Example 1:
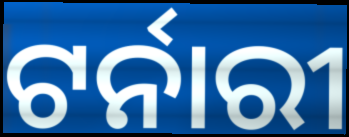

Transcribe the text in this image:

ଟର୍ନାରୀ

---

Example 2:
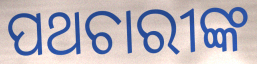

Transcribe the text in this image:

ପଥଚାରୀଙ୍କ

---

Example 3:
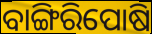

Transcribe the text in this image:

ବାଙ୍ଗିରିପୋଷି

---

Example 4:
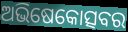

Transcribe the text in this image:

ଅଭିଷେକୋତ୍ସବର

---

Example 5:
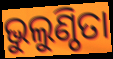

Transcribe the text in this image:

ଭୁଲୁଣ୍ଠିତା